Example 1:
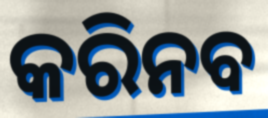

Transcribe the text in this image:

କରିନବ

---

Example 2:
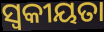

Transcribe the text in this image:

ସ୍ଵକୀୟତା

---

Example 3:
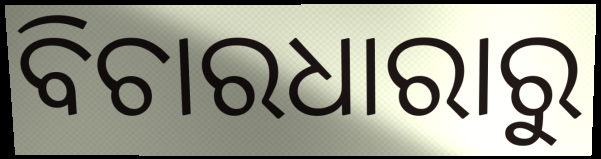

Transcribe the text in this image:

ବିଚାରଧାରାରୁ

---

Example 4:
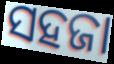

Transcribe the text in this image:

ସହଜା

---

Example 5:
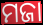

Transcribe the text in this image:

ମଜା